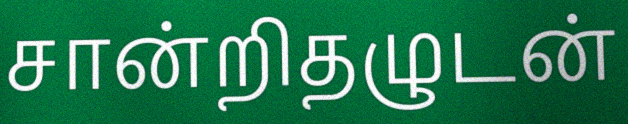
சான்றிதழுடன்